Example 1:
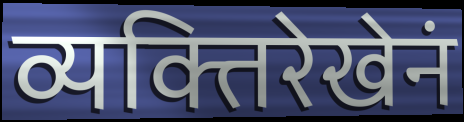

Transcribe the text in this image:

व्यक्तिरेखेनं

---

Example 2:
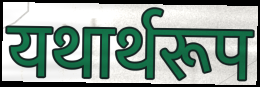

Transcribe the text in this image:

यथार्थरूप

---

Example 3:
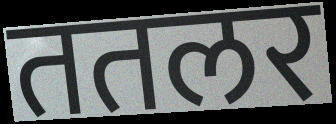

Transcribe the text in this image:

ततलर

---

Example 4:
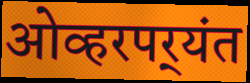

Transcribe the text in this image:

ओव्हरपर्यंत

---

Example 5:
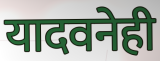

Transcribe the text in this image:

यादवनेही